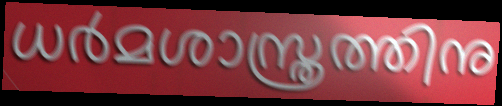
ധർമശാസ്ത്രത്തിനു